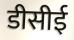
डीसीई